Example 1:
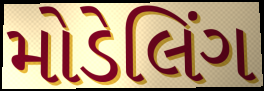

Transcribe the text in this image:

મોડેલિંગ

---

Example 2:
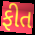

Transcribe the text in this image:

ફીત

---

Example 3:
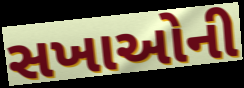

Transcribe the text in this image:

સખાઓની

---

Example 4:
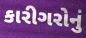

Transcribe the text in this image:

કારીગરોનું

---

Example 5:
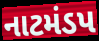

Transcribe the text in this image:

નાટમંડપ